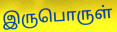
இருபொருள்